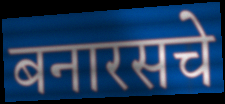
बनारसचे